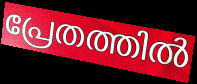
പ്രേതത്തിൽ